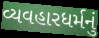
વ્યવહારધર્મનું